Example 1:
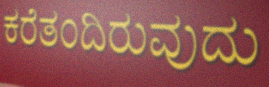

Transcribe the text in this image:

ಕರೆತಂದಿರುವುದು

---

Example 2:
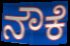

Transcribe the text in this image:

ನೌಕೆ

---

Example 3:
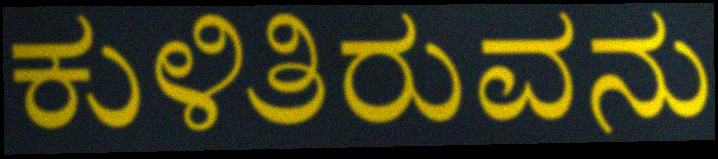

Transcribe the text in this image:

ಕುಳಿತಿರುವನು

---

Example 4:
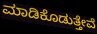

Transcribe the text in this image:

ಮಾಡಿಕೊಡುತ್ತೇವೆ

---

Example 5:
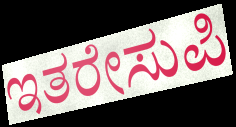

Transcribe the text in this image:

ಇತರೇಸುಪಿ